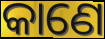
କାଣେ